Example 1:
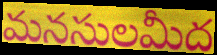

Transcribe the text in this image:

మనసులమీద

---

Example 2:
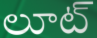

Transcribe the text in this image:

లూట్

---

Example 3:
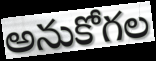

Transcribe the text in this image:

అనుకోగల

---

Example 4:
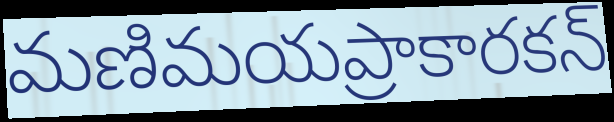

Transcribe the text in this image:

మణిమయప్రాకారకన్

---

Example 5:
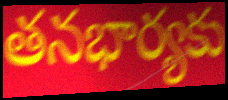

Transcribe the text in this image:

తనభార్యకు